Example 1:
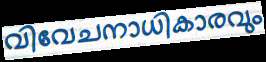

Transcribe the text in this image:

വിവേചനാധികാരവും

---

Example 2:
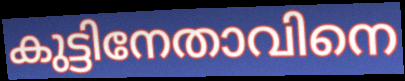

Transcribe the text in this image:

കുട്ടിനേതാവിനെ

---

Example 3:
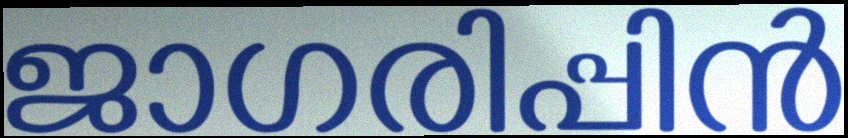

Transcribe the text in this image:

ജാഗരിപ്പിൻ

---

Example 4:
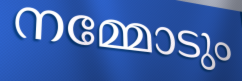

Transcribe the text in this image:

നമ്മോടും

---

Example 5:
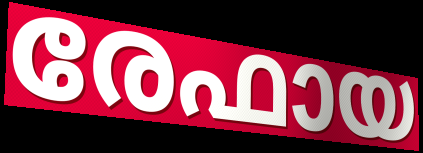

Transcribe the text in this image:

രേഫായ